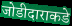
जोडीदाराकडे